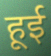
हूई